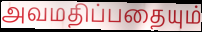
அவமதிப்பதையும்